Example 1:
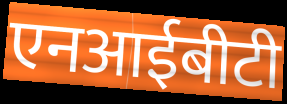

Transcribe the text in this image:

एनआईबीटी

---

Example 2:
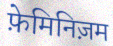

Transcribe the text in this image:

फ़ेमिनिज़म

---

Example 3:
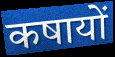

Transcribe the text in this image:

कषायों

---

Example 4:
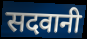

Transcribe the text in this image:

सदवानी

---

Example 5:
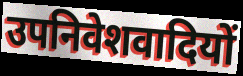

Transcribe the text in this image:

उपनिवेशवादियों